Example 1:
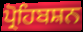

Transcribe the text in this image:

ਪ੍ਰੋਹਿਬਸ਼ਨ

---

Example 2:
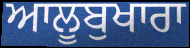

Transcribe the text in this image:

ਆਲੂਬੁਖਾਰਾ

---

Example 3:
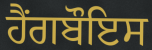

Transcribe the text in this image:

ਹੈਂਗਬੌਇਸ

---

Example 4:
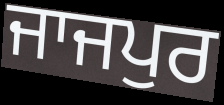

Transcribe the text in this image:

ਜਾਜਪੁਰ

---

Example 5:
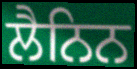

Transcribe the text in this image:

ਲੈਨਿਨ